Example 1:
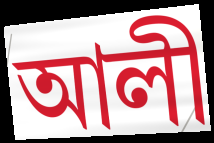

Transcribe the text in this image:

আলী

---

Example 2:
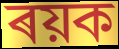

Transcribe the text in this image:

ৰয়ক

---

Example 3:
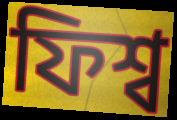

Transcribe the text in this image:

ফিশ্ব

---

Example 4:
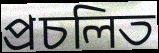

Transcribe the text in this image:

প্ৰচলিত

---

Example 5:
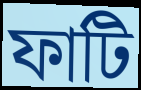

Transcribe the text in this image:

ফাটি